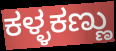
ಕಳ್ಳಕಣ್ಣು